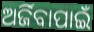
ଅର୍ଜିବାପାଇଁ